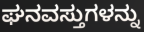
ಘನವಸ್ತುಗಳನ್ನು